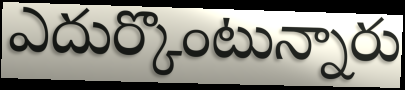
ఎదుర్కొంటున్నారు